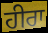
ਹੀਰਾ